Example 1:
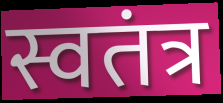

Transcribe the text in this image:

स्वतंत्र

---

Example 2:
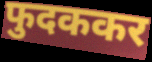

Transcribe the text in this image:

फुदककर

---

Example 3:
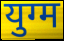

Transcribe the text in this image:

युग्म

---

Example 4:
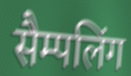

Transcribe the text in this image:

सैम्पलिंग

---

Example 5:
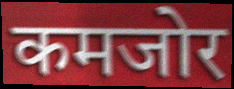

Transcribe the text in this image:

कमजोर